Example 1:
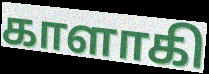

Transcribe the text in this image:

காளாகி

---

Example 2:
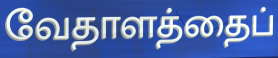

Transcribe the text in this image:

வேதாளத்தைப்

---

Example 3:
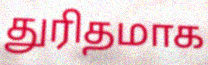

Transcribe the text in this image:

துரிதமாக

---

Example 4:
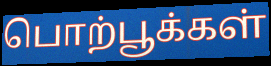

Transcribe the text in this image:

பொற்பூக்கள்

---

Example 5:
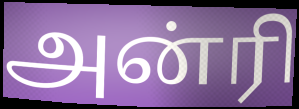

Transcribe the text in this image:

அன்ரி